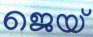
ജെയ്